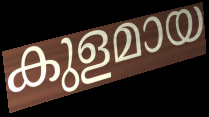
കുളമായ